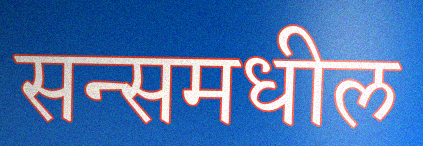
सन्समधील